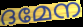
ദമേന